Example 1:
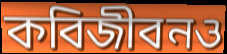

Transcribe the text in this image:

কবিজীবনও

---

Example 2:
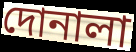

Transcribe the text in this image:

দোনালা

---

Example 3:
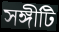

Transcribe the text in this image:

সঙ্গীটি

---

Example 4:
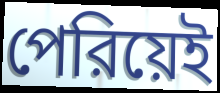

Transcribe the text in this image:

পেরিয়েই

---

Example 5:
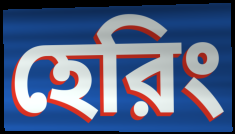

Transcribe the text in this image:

হেরিং